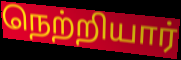
நெற்றியார்